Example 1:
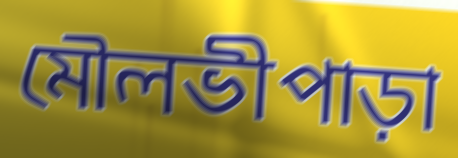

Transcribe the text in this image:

মৌলভীপাড়া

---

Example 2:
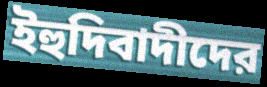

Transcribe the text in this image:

ইহুদিবাদীদের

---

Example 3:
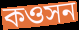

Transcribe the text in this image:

কওসন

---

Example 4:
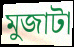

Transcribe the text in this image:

মুজাটা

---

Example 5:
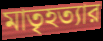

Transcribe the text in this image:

মাতৃহত্যার